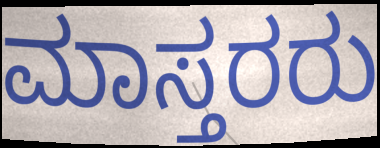
ಮಾಸ್ತರರು